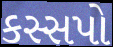
કસ્સપો